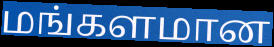
மங்களமான